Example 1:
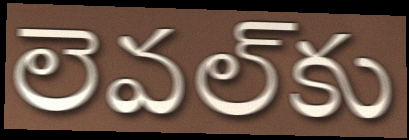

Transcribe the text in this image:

లెవల్‌కు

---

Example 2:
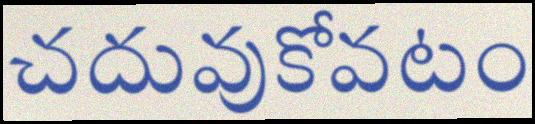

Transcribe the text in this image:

చదువుకోవటం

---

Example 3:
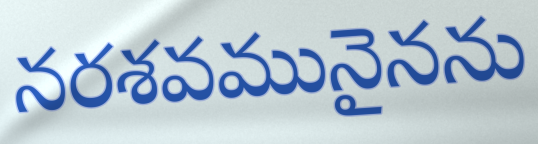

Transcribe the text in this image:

నరశవమునైనను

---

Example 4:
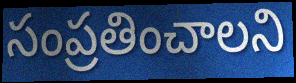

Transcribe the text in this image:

సంప్రతించాలని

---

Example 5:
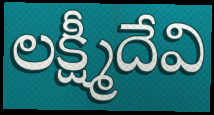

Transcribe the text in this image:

లక్ష్మీదేవి